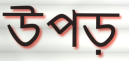
উপড়